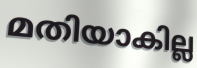
മതിയാകില്ല